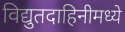
विद्युतदाहिनीमध्ये